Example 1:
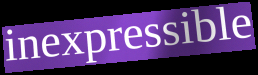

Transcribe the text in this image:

inexpressible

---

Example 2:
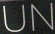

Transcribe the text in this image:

UN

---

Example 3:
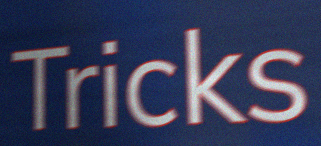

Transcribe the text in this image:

Tricks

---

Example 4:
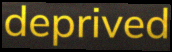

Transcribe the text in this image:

deprived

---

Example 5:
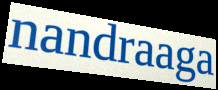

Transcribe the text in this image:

nandraaga